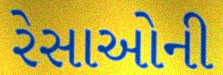
રેસાઓની